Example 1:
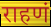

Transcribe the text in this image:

राहणं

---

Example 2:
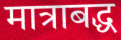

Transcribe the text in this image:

मात्राबद्ध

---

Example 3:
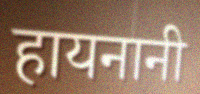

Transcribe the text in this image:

हायनानी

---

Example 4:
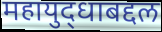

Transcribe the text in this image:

महायुद्धाबद्दल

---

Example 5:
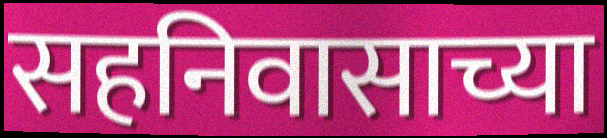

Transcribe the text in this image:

सहनिवासाच्या